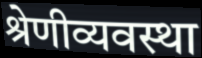
श्रेणीव्यवस्था